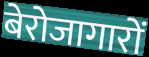
बेरोजागारों